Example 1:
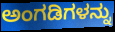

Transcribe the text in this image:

ಅಂಗಡಿಗಳನ್ನು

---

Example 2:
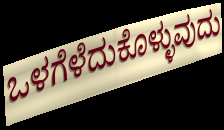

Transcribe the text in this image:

ಒಳಗೆಳೆದುಕೊಳ್ಳುವುದು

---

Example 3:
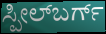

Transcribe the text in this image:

ಸ್ಪೀಲ್‌ಬರ್ಗ್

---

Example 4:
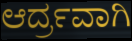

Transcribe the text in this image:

ಆರ್ದ್ರವಾಗಿ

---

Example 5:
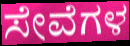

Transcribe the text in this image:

ಸೇವೆಗಳ